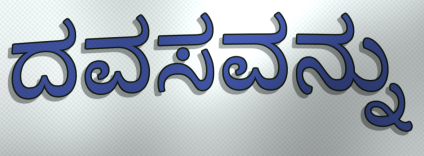
ದವಸವನ್ನು